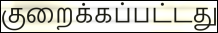
குறைக்கப்பட்டது